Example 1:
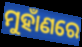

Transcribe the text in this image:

ମୁହାଁଣରେ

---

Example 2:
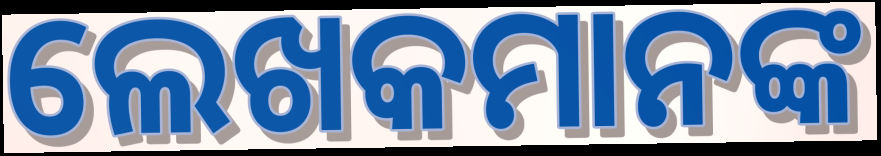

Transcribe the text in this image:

ଲେଖକମାନଙ୍କ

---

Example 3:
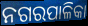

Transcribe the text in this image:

ନଗରପାଳିକା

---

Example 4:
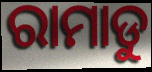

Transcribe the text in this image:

ରାମାଡୁ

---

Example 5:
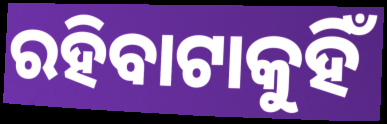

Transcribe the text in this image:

ରହିବାଟାକୁହିଁ